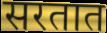
सरतात